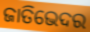
ଜାତିଭେଦର